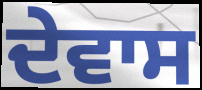
ਦੇਵਾਸ